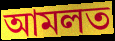
আমলত